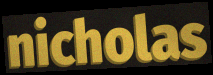
nicholas